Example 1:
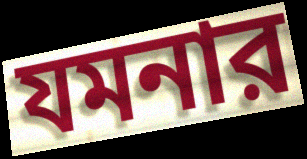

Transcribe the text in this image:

যমনার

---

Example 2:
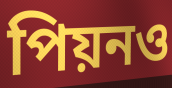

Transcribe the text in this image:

পিয়নও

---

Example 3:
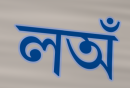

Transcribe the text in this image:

লঅঁ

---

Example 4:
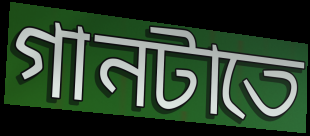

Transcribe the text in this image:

গানটাতে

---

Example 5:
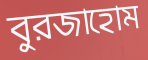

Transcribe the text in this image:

বুরজাহোম